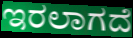
ಇರಲಾಗದೆ